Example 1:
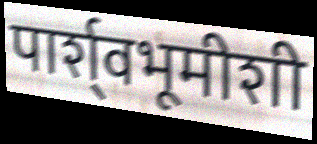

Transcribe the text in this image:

पार्श्वभूमीशी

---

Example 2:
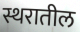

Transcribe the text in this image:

स्थरातील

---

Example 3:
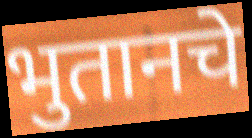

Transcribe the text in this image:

भुतानचे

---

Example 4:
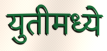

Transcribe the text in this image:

युतीमध्ये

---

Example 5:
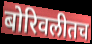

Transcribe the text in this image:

बोरिवलीतच